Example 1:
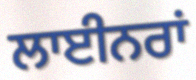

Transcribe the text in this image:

ਲਾਈਨਰਾਂ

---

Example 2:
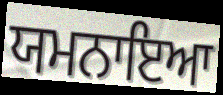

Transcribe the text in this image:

ਯਮਨਾਇਆ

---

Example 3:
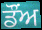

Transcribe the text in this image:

ਡੌਂਅ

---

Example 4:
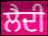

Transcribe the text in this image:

ਲੈਦੀ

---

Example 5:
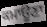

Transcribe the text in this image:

ਕਮਾਊਣਾ